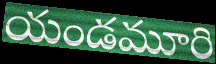
యండమూరి